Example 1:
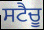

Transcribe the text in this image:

ਸਟੈਚੂ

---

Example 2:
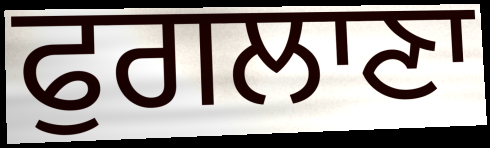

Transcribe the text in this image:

ਫੁਗਲਾਣਾ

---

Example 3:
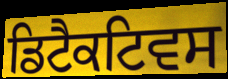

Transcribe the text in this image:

ਡਿਟੈਕਟਿਵਸ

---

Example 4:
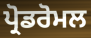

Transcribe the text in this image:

ਪ੍ਰੋਡਰੋਮਲ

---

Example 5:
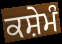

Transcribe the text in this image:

ਕਸ਼ੇਮੰ